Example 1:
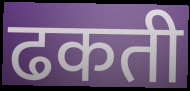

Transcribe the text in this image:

ढकती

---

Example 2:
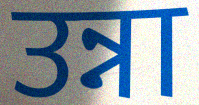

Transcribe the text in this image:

उन्ना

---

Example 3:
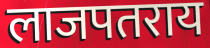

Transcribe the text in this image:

लाजपतराय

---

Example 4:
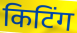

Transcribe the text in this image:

किटिंग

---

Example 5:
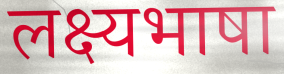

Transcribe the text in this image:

लक्ष्यभाषा